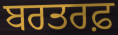
ਬਰਤਰਫ਼